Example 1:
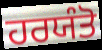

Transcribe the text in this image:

ਹਰਯੰਤੋ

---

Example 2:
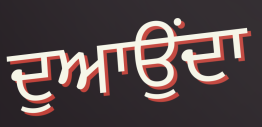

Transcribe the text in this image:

ਦੁਆਉਂਦਾ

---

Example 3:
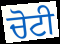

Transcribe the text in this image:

ਚੋਟੀ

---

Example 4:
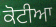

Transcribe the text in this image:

ਕੋਟੀਆ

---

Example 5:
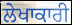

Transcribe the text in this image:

ਲੇਖਾਕਾਰੀ